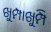
ଖୁମ୍ପାଖୁମ୍ପି